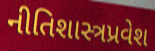
નીતિશાસ્ત્રપ્રવેશ